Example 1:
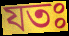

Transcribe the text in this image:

যতঃ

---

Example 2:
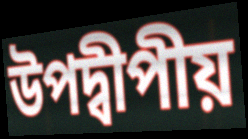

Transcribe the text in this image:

উপদ্বীপীয়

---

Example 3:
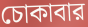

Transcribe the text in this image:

চোকাবার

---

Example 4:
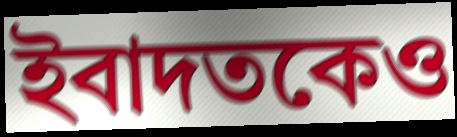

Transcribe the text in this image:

ইবাদতকেও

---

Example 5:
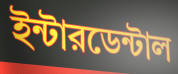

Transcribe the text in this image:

ইন্টারডেন্টাল